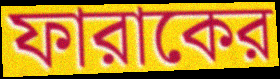
ফারাকের